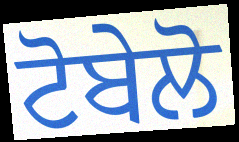
ਟੋਬੇਲੋ